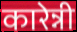
कारेन्नी